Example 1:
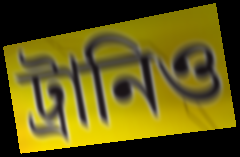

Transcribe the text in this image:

ট্রানিও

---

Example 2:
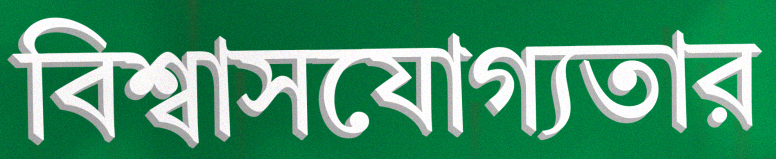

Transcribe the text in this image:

বিশ্বাসযোগ্যতার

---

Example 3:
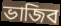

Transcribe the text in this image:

ভাজিব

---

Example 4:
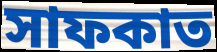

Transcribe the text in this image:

সাফকাত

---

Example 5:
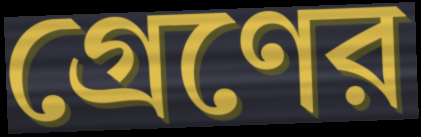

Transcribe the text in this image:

গ্রেণের